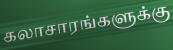
கலாசாரங்களுக்கு